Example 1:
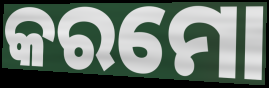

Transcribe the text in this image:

କରମୋ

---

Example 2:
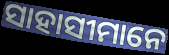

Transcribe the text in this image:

ସାହାସୀମାନେ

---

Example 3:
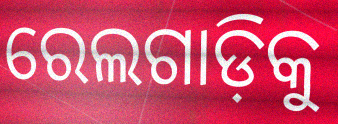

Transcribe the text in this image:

ରେଲଗାଡ଼ିକୁ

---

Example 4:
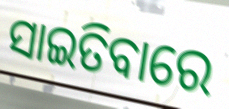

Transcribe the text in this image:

ସାଇତିବାରେ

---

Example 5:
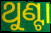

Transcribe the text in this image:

ଥୁଣ୍ଟା